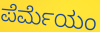
ಪೆರ್ಮೆಯಂ